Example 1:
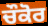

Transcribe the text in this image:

ਚੌਕੋਰ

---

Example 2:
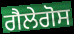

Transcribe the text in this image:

ਗੈਲੇਗੋਸ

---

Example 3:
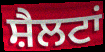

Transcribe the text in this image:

ਸ਼ੈਲਟਾਂ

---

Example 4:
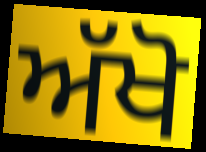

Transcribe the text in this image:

ਅੱਖੋ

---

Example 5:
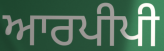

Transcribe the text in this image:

ਆਰਪੀਪੀ